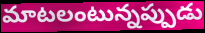
మాటలంటున్నప్పుడు